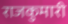
राजकुमारी